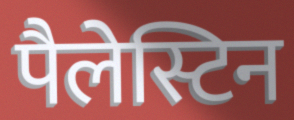
पैलेस्टिन